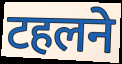
टहलने